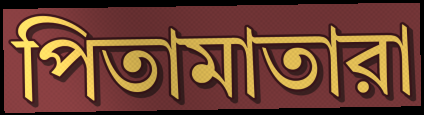
পিতামাতারা